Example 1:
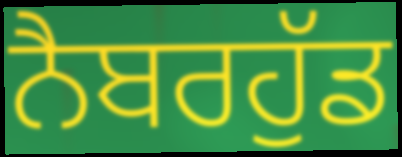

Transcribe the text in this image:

ਨੈਬਰਹੁੱਡ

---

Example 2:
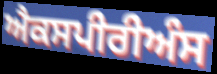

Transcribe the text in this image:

ਐਕਸਪੀਰੀਅੰਸ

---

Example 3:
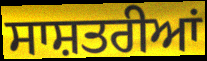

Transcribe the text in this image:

ਸਾਸ਼ਤਰੀਆਂ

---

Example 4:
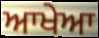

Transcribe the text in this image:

ਆਖੇਆ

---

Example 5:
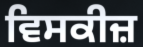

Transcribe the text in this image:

ਵਿਸਕੀਜ਼